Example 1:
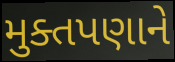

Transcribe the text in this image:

મુક્તપણાને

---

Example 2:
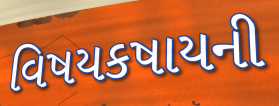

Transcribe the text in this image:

વિષયકષાયની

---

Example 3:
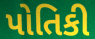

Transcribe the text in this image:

પોતિકી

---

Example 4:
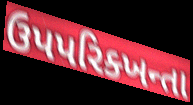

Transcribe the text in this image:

ઉપપરિક્ખન્તા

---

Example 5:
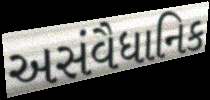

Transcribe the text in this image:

અસંવૈધાનિક